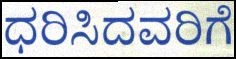
ಧರಿಸಿದವರಿಗೆ